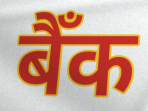
बैँक